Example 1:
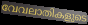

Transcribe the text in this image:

വേവലാതികളുടെ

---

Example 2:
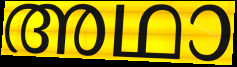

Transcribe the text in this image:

അഥാ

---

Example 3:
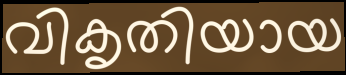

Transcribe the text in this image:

വികൃതിയായ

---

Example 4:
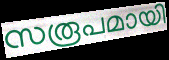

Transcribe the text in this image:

സരൂപമായി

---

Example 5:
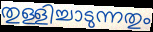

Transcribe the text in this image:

തുള്ളിച്ചാടുന്നതും